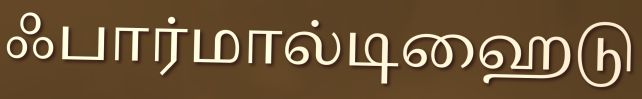
ஃபார்மால்டிஹைடு